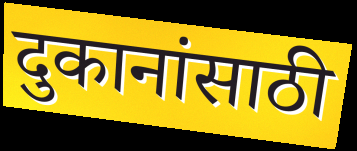
दुकानांसाठी